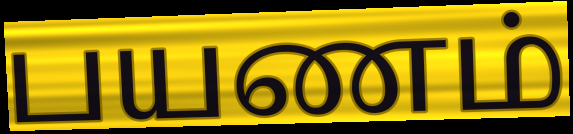
பயணம்